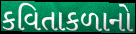
કવિતાકળાનો